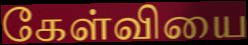
கேள்வியை